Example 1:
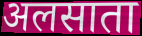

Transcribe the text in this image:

अलसाता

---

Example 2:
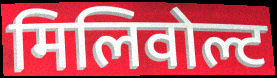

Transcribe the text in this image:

मिलिवोल्ट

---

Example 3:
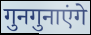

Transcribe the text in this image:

गुनगुनाएंगे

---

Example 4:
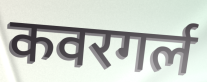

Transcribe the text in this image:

कवरगर्ल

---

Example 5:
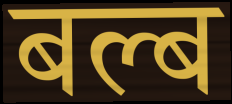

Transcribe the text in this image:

बल्ब